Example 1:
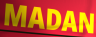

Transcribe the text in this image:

MADAN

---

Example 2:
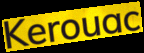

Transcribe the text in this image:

Kerouac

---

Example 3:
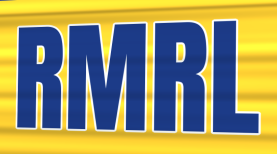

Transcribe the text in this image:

RMRL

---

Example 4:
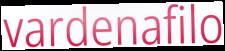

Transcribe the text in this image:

vardenafilo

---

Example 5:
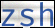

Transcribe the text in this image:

zsh